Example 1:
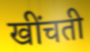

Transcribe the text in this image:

खींचती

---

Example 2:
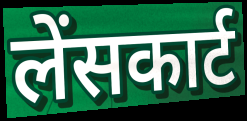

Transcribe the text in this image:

लेंसकार्ट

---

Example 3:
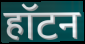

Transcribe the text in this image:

हॉटन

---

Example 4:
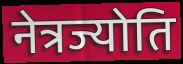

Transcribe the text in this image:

नेत्रज्योति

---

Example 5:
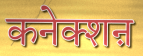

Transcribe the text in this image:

कनेक्शऩ